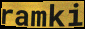
ramki